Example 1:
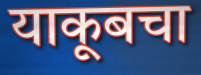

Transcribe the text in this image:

याकूबचा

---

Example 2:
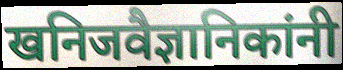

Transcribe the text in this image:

खनिजवैज्ञानिकांनी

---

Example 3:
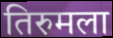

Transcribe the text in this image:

तिरुमला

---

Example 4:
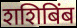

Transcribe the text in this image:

शशिबिंब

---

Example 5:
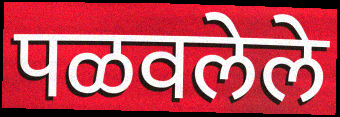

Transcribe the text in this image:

पळवलेले